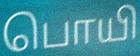
பொயி